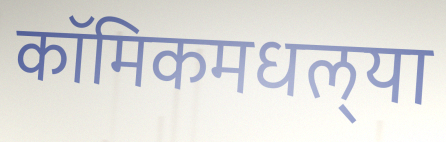
कॉमिकमधल्या